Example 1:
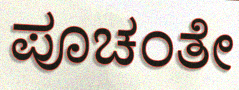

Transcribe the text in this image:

ಪೂಚಂತೇ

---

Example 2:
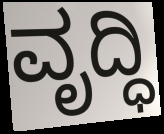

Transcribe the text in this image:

ವೃದ್ಧಿ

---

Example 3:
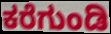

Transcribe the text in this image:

ಕರೆಗುಂಡಿ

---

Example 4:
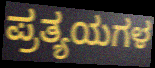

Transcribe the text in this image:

ಪ್ರತ್ಯಯಗಳ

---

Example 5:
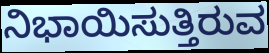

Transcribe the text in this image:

ನಿಭಾಯಿಸುತ್ತಿರುವ